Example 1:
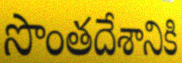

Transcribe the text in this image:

సొంతదేశానికి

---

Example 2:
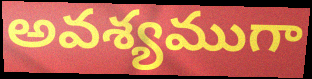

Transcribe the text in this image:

అవశ్యముగా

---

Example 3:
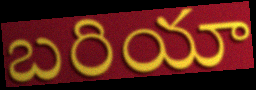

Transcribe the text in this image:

బరియా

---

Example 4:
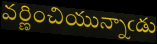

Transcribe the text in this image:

వర్ణించియున్నాఁడు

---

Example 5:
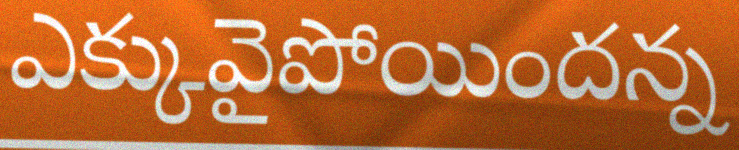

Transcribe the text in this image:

ఎక్కువైపోయిందన్న